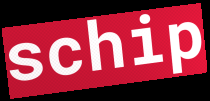
schip